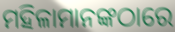
ମହିଳାମାନଙ୍କଠାରେ